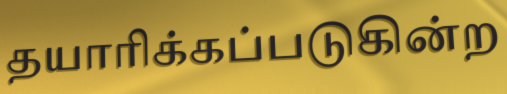
தயாரிக்கப்படுகின்ற